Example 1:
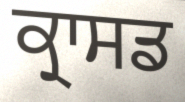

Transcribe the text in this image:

ਕ੍ਰਾਸਡ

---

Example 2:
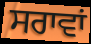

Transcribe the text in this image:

ਸਰਾਵਾਂ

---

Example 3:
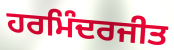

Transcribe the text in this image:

ਹਰਮਿੰਦਰਜੀਤ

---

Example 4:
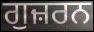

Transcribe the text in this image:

ਗੁਜ਼ਰਨ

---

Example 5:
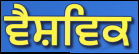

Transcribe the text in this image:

ਵੈਸ਼ਵਿਕ